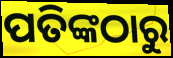
ପତିଙ୍କଠାରୁ